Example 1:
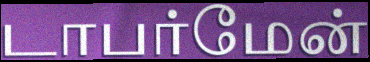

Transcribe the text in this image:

டாபர்மேன்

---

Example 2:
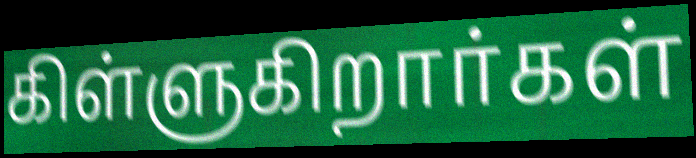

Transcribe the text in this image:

கிள்ளுகிறார்கள்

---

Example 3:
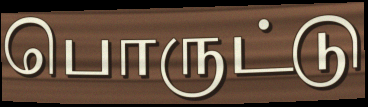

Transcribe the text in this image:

பொருட்டு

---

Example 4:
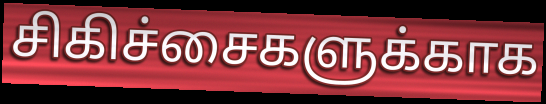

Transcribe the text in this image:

சிகிச்சைகளுக்காக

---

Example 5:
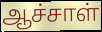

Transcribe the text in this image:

ஆச்சாள்